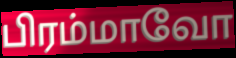
பிரம்மாவோ